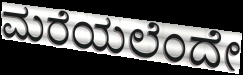
ಮರೆಯಲೆಂದೇ